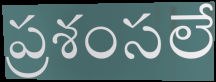
ప్రశంసలే